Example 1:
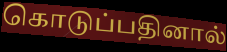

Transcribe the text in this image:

கொடுப்பதினால்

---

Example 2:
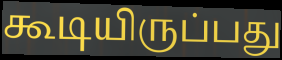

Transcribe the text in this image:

கூடியிருப்பது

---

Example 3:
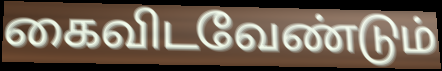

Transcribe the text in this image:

கைவிடவேண்டும்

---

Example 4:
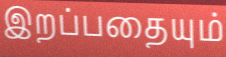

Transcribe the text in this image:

இறப்பதையும்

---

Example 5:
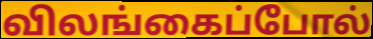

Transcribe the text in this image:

விலங்கைப்போல்